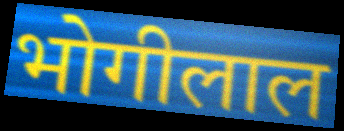
भोगीलाल